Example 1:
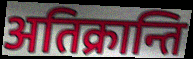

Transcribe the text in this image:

अतिक्रान्ति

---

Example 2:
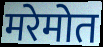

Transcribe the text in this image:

मरेमोत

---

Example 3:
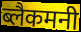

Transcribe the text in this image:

ब्‍लैकमनी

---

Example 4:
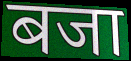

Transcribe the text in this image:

बजा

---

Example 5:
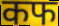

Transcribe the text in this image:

कफ